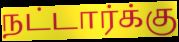
நட்டார்க்கு